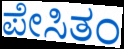
ಪೇಸಿತಂ